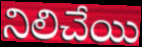
నిలిచేయి